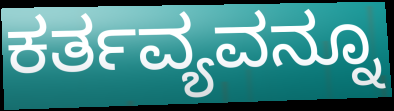
ಕರ್ತವ್ಯವನ್ನೂ